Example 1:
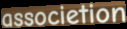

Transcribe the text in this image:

associetion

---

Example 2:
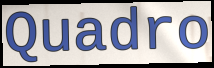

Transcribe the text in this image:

Quadro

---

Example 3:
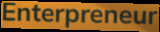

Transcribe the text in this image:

Enterpreneur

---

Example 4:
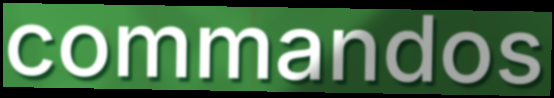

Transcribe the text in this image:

commandos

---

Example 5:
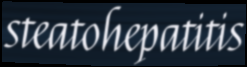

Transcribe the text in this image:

steatohepatitis